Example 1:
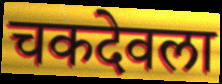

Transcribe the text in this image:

चकदेवला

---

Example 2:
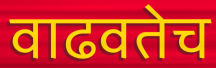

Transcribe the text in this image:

वाढवतेच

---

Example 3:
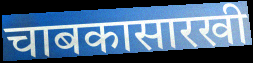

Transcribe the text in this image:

चाबकासारखी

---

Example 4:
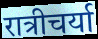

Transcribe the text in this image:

रात्रीचर्या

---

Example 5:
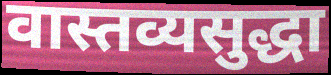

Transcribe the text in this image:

वास्तव्यसुद्धा